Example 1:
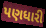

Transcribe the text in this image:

પણધારી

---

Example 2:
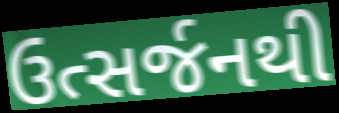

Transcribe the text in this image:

ઉત્સર્જનથી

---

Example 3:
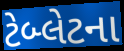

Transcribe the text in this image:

ટેબ્લેટના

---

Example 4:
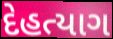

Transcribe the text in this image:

દેહત્યાગ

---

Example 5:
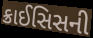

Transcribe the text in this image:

ક્રાઈસિસની